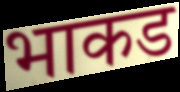
भाकड